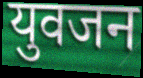
युवजन